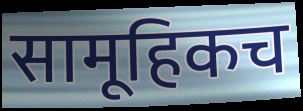
सामूहिकच